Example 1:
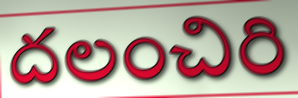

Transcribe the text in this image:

దలంచిరి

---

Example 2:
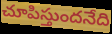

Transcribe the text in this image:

చూపిస్తుందనేది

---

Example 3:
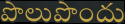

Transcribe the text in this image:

పొలుపొందు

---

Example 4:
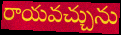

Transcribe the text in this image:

రాయవచ్చును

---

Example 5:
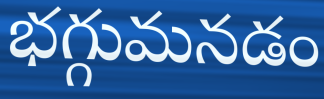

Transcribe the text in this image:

భగ్గుమనడం